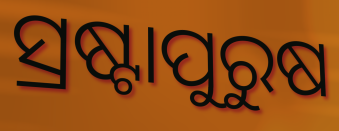
ସ୍ରଷ୍ଟାପୁରୁଷ